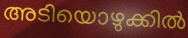
അടിയൊഴുക്കിൽ